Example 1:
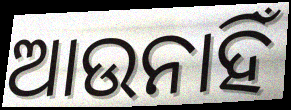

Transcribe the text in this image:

ଆଉନାହିଁ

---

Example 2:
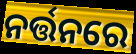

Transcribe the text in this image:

ନର୍ତ୍ତନରେ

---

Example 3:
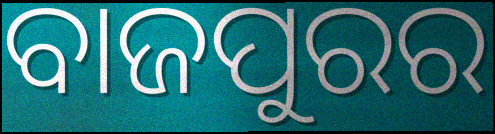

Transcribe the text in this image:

ବାଜପୁରର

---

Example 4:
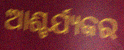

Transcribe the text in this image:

ଆଶ୍ଚର୍ଯ୍ୟକର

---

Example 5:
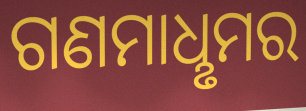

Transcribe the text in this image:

ଗଣମାଧୢମର